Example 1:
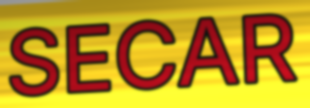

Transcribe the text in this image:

SECAR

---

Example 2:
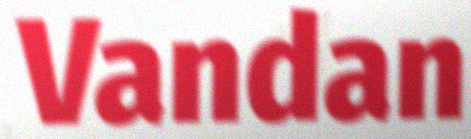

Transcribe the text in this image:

Vandan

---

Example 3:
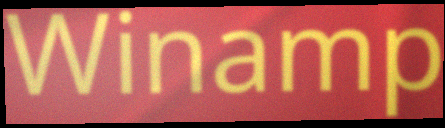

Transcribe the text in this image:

Winamp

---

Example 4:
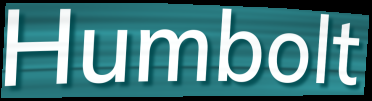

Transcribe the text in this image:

Humbolt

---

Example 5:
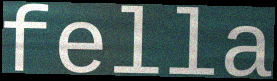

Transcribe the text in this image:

fella